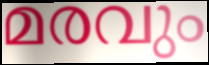
മരവും